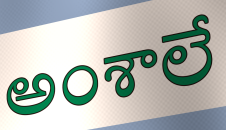
అంశాలే